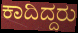
ಕಾದಿದ್ದರು